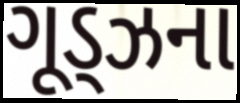
ગૂડ્ઝના